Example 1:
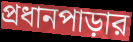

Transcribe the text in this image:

প্রধানপাড়ার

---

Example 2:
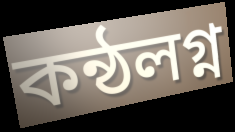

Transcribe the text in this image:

কন্ঠলগ্ন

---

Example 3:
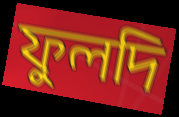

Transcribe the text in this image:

ফুলদি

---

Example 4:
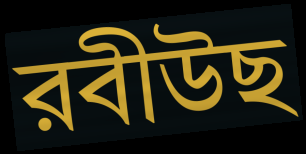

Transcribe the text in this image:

রবীউছ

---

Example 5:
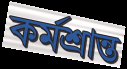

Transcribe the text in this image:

কর্মশ্রান্ত